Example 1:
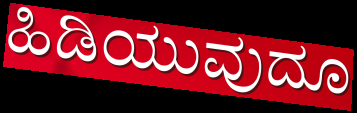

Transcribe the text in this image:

ಹಿಡಿಯುವುದೂ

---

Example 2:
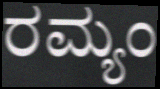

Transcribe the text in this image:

ರಮ್ಯಂ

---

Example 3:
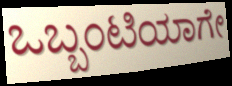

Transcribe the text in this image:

ಒಬ್ಬಂಟಿಯಾಗೇ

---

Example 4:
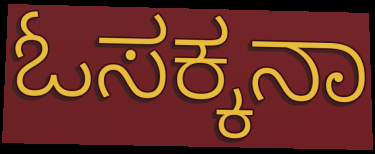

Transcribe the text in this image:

ಓಸಕ್ಕನಾ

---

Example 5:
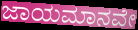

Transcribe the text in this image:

ಜಾಯಮಾನವೇ